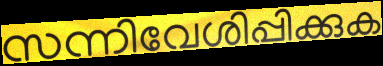
സന്നിവേശിപ്പിക്കുക